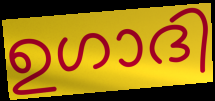
ഉഗാദി